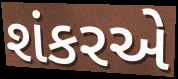
શંકરએ